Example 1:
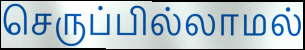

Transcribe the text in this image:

செருப்பில்லாமல்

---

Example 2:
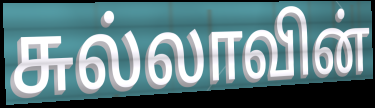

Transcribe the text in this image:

சுல்லாவின்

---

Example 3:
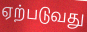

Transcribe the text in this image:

ஏற்படுவது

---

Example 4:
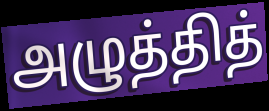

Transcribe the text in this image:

அழுத்தித்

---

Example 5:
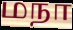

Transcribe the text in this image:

மநா